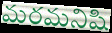
మరమనిషి